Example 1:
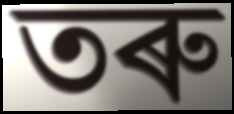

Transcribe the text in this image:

তৰু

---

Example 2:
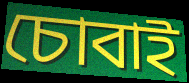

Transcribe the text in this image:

চোবাই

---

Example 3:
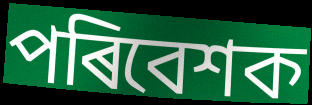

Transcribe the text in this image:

পৰিবেশক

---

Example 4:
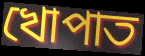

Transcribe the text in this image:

খোপাত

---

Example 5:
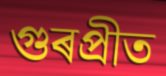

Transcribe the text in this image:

গুৰপ্ৰীত